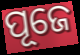
ପୂଜେ